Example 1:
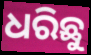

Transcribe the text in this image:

ଧରିଛୁ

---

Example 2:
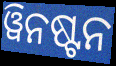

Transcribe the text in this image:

ୱିନଷ୍ଟନ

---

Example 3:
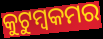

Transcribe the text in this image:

କୁଟୁମ୍ବକମର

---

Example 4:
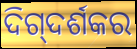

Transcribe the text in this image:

ଦିଗ୍‍ଦର୍ଶକର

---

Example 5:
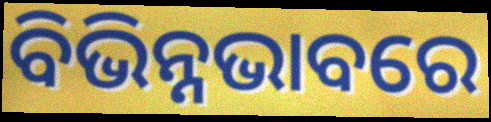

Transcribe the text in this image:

ବିଭିନ୍ନଭାବରେ